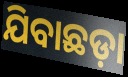
ଯିବାଛଡ଼ା